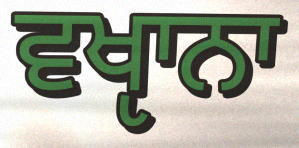
ਵਖੵਾਨਾ